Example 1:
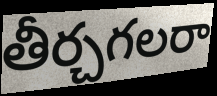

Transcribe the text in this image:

తీర్చగలరా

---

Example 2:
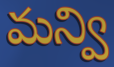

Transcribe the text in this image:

మన్వి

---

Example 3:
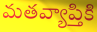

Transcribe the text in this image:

మతవ్యాప్తికి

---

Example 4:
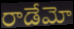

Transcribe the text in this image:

రాడేమో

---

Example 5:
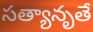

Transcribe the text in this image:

సత్యానృతే